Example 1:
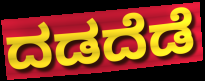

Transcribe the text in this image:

ದಡದೆಡೆ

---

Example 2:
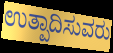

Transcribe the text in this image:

ಉತ್ಪಾದಿಸುವರು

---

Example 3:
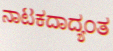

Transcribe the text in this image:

ನಾಟಕದಾದ್ಯಂತ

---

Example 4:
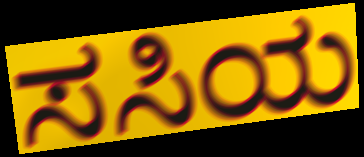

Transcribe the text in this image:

ಸಸಿಯ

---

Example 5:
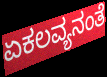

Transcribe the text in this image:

ಏಕಲವ್ಯನಂತೆ